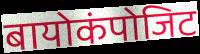
बायोकंपोजिट